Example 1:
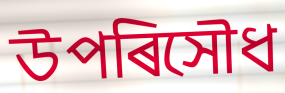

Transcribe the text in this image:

উপৰিসৌধ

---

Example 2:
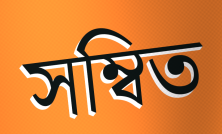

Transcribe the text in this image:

সম্বিত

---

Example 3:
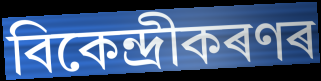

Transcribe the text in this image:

বিকেন্দ্ৰীকৰণৰ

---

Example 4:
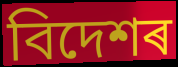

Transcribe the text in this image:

বিদেশৰ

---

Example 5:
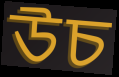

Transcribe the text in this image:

উচ